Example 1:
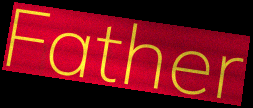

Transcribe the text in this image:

Father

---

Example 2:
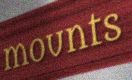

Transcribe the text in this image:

mounts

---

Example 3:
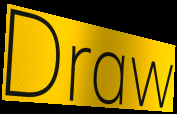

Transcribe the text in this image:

Draw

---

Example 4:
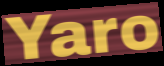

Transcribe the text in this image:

Yaro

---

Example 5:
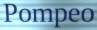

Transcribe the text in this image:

Pompeo